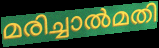
മരിച്ചാൽമതി